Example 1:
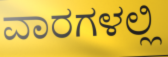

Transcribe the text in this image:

ವಾರಗಳಲ್ಲಿ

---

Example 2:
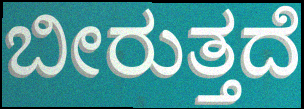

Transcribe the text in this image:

ಬೀರುತ್ತದೆ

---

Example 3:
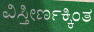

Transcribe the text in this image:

ವಿಸ್ತೀರ್ಣಕ್ಕಿಂತ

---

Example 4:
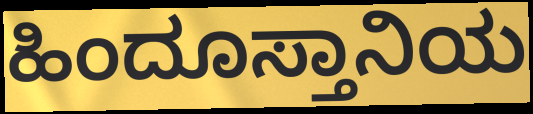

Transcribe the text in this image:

ಹಿಂದೂಸ್ತಾನಿಯ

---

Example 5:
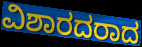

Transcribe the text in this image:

ವಿಶಾರದರಾದ